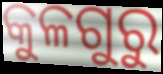
କୁଳଗୁରୁ